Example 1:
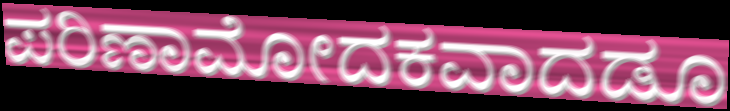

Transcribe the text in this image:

ಪರಿಣಾಮೋದಕವಾದಡೂ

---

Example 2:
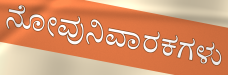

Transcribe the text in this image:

ನೋವುನಿವಾರಕಗಳು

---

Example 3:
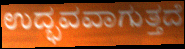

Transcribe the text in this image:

ಉದ್ಭವವಾಗುತ್ತದೆ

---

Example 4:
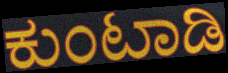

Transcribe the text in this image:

ಕುಂಟಾಡಿ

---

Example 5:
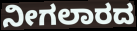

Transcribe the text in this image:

ನೀಗಲಾರದ